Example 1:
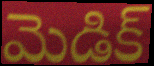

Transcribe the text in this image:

మెడిక్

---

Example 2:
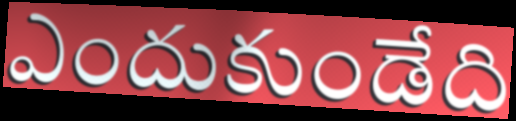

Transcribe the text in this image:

ఎందుకుండేది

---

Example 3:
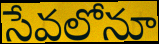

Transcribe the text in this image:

సేవలోనూ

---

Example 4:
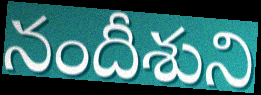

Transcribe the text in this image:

నందీశుని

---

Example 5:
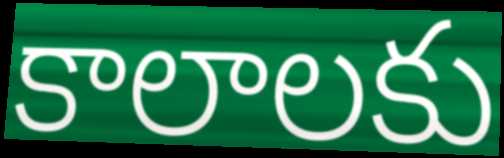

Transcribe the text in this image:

కాలాలకు